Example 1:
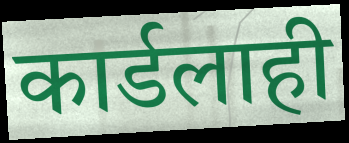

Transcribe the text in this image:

कार्डलाही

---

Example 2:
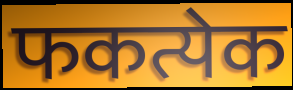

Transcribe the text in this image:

फकत्येक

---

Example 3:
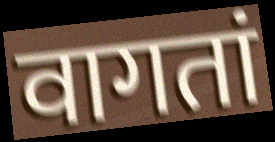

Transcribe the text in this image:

वागतां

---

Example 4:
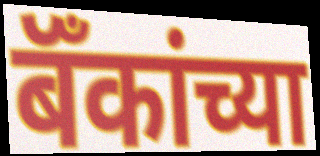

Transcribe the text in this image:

बॅँकांच्या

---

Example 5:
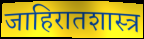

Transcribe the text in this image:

जाहिरातशास्त्र